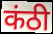
कंठी